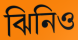
ঝিনিও